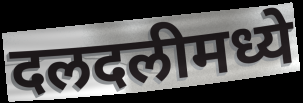
दलदलीमध्ये